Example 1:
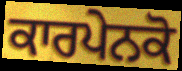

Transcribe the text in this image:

ਕਾਰਪੇਨਕੋ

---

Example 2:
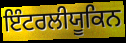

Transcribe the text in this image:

ਇੰਟਰਲੀਯੂਕਿਨ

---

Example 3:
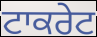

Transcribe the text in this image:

ਟਾਕਰੇਟ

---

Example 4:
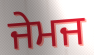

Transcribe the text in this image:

ਜੇਮਜ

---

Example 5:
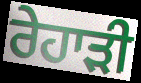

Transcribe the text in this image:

ਰੇਹਾੜੀ